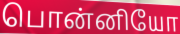
பொன்னியோ